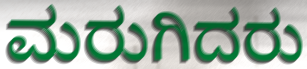
ಮರುಗಿದರು